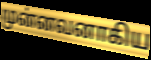
முன்னவனாகிய